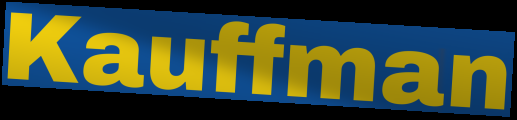
Kauffman